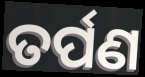
ତର୍ପଣ